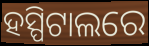
ହସ୍ପିଟାଲରେ